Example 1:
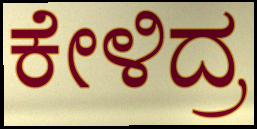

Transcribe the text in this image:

ಕೇಳಿದ್ರ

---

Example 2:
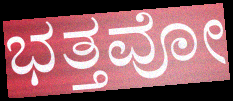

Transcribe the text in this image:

ಭತ್ತವೋ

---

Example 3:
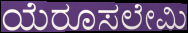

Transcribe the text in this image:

ಯೆರೂಸಲೇಮಿ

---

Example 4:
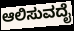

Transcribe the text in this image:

ಆಲಿಸುವದೈ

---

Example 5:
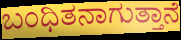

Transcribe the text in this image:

ಬಂಧಿತನಾಗುತ್ತಾನೆ